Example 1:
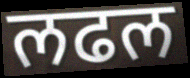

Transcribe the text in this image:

लढल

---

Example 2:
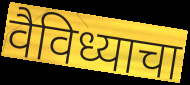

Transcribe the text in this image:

वैविध्याचा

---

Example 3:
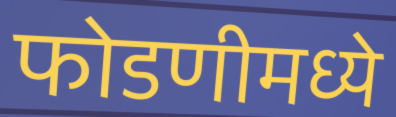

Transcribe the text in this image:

फोडणीमध्ये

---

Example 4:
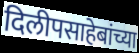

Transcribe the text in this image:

दिलीपसाहेबांच्या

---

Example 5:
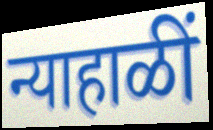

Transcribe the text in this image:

न्याहाळीं